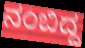
ನಂಬಿದ್ದ